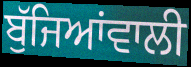
ਬੁੱਜਿਆਂਵਾਲੀ